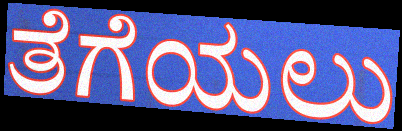
ತೆಗೆಯಲು